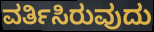
ವರ್ತಿಸಿರುವುದು